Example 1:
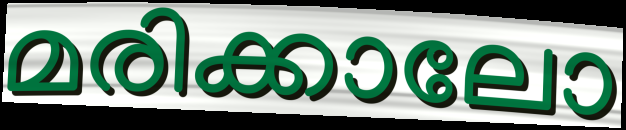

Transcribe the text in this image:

മരിക്കാലോ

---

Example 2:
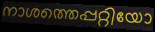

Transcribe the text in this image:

നാശത്തെപ്പറ്റിയോ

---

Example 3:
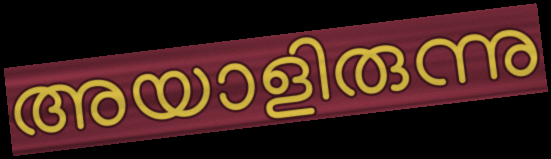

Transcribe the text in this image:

അയാളിരുന്നു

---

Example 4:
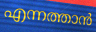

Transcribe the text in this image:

എന്നത്താൻ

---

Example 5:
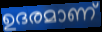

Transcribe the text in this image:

ഉദരമാണ്